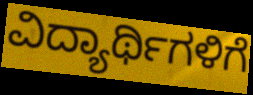
ವಿದ್ಯಾರ್ಥಿಗಳಿಗೆ